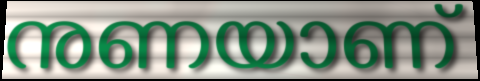
നുണയാണ്